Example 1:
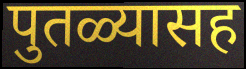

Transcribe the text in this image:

पुतळ्यासह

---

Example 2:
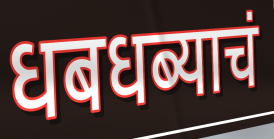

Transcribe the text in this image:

धबधब्याचं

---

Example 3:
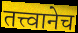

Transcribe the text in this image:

तत्त्वानेच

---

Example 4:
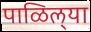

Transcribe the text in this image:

पाळिल्या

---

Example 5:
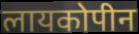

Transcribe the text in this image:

लायकोपीन